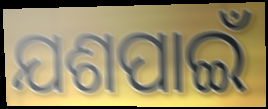
ଯଶପାଇଁ